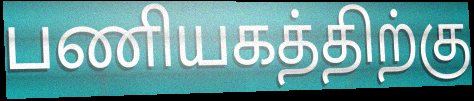
பணியகத்திற்கு